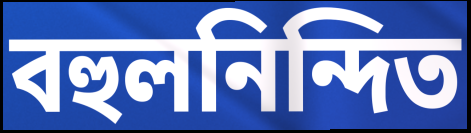
বহুলনিন্দিত